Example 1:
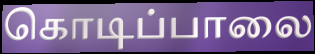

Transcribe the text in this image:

கொடிப்பாலை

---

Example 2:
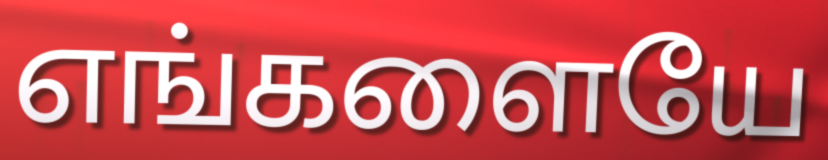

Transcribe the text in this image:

எங்களையே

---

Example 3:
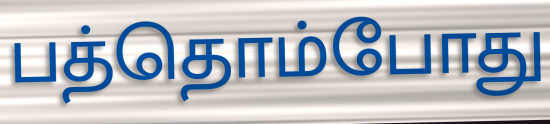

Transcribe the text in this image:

பத்தொம்போது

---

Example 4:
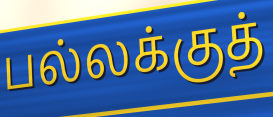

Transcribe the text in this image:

பல்லக்குத்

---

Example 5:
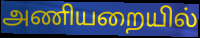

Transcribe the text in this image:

அணியறையில்